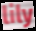
lily